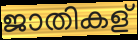
ജാതികള്